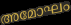
അമോഘം